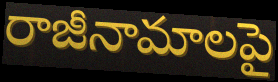
రాజీనామాలపై